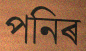
পনিৰ